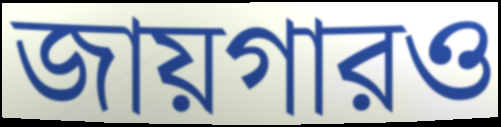
জায়গারও